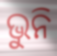
ଭୁନି